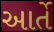
આર્તે